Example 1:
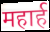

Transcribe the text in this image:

महार्ह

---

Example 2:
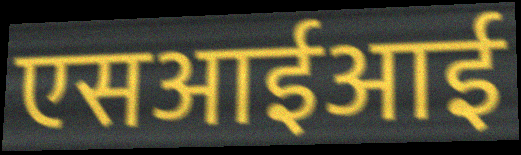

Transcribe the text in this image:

एसआईआई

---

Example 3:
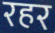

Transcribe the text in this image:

रहर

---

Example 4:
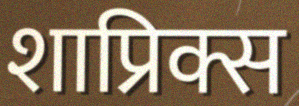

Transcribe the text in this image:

शाप्रिक्स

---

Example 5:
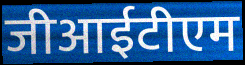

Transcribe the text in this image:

जीआईटीएम